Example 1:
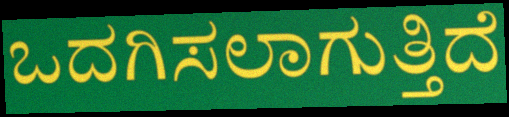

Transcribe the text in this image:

ಒದಗಿಸಲಾಗುತ್ತಿದೆ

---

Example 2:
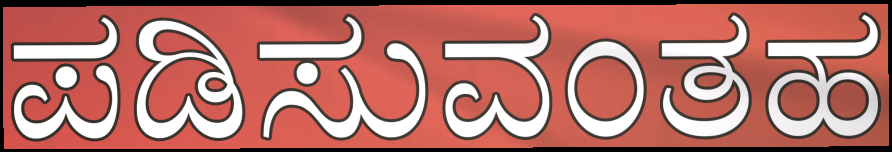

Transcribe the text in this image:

ಪಡಿಸುವಂತಹ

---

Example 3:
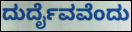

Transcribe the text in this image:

ದುರ್ದೈವವೆಂದು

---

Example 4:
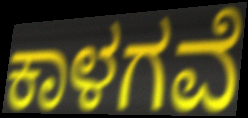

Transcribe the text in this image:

ಕಾಳಗವೆ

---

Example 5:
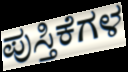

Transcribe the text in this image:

ಪುಸ್ತಿಕೆಗಳ